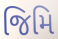
જિમિ